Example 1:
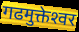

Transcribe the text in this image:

गढमुक्तेश्वर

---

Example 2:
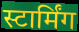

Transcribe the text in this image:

स्टार्मिंग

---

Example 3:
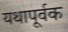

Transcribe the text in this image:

यथापूर्वक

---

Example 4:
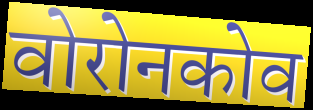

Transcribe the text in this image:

वोरोनकोव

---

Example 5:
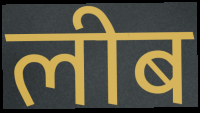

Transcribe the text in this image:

लीब